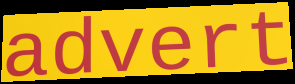
advert